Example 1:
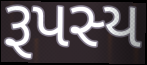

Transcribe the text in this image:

રૂપસ્ય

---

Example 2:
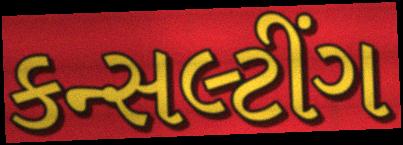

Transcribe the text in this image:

કન્સલ્ટીંગ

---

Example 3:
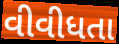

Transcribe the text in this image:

વીવીધતા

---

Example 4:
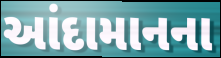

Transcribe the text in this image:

આંદામાનના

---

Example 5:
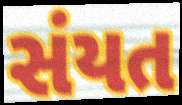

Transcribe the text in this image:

સંયત